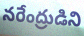
నరేంద్రుడిని